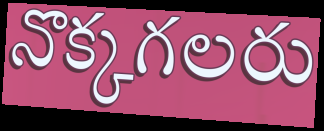
నొక్కగలరు